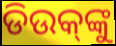
ଡିଉକ୍‌ଙ୍କୁ